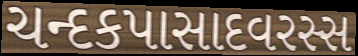
ચન્દકપાસાદવરસ્સ